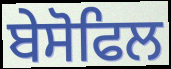
ਬੇਸੋਫਿਲ